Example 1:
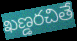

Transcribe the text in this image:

ఖణ్డరచితే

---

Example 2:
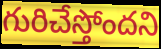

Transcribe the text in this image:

గురిచేస్తోందని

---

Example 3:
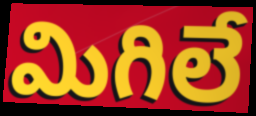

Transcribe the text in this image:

మిగిలే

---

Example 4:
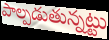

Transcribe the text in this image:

పాల్పడుతున్నట్టు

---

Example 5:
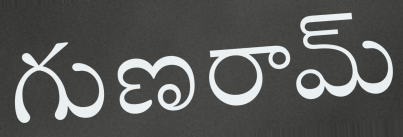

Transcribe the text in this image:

గుణరామ్